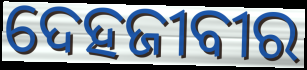
ଦେହଜୀବୀର